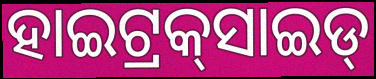
ହାଇଟ୍ରକ୍‌ସାଇଡ୍